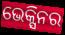
ଭେକ୍ସିନର